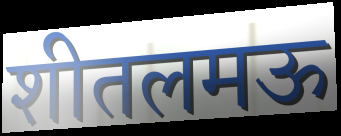
शीतलमऊ